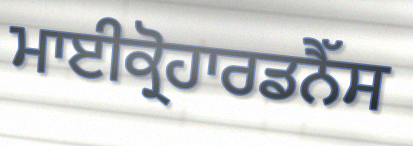
ਮਾਈਕ੍ਰੋਹਾਰਡਨੈੱਸ